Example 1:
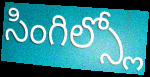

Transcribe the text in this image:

సింగిల్స్లో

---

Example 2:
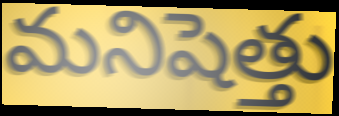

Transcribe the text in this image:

మనిషెత్తు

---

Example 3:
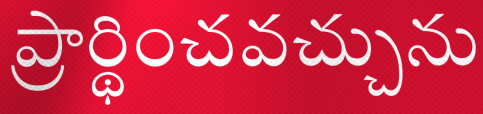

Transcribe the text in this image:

ప్రార్థించవచ్చును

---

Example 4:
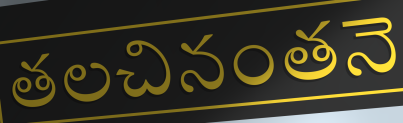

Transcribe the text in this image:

తలచినంతనె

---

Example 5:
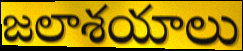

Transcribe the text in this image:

జలాశయాలు